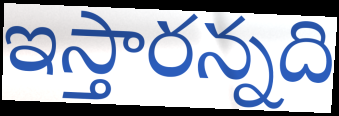
ఇస్తారన్నది